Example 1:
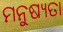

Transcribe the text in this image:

ମନୁଷ୍ୟତା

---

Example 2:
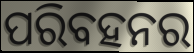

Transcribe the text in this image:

ପରିବହନର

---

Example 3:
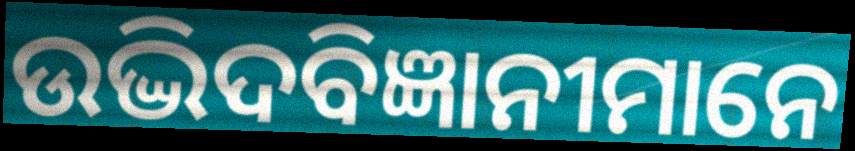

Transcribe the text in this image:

ଉଦ୍ଭିଦବିଜ୍ଞାନୀମାନେ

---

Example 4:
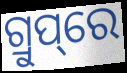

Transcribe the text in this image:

ଗ୍ରୁପ୍‌ରେ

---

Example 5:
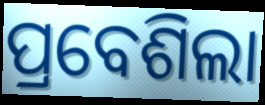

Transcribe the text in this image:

ପ୍ରବେଶିଲା